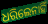
ଧରିଲେନାହିଁ